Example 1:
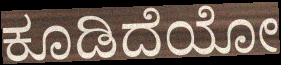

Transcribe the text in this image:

ಕೂಡಿದೆಯೋ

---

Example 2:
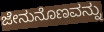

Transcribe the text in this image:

ಜೇನುನೊಣವನ್ನು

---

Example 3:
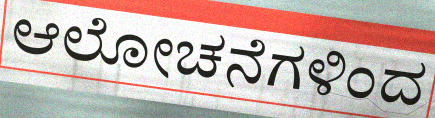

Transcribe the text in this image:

ಆಲೋಚನೆಗಳಿಂದ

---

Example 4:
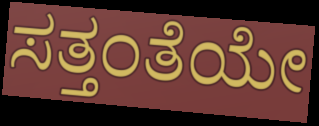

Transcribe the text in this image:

ಸತ್ತಂತೆಯೇ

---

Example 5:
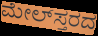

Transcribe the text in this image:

ಮೇಲ್‌ಸ್ತರದ